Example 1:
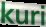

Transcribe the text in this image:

kuri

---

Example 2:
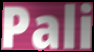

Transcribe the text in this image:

Pali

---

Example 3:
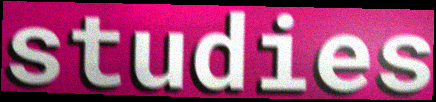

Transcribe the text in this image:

studies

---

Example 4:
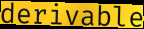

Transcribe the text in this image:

derivable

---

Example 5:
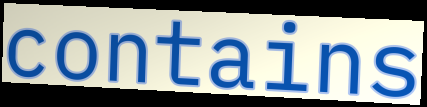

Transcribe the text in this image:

contains